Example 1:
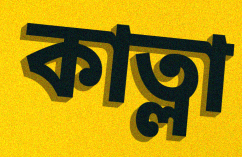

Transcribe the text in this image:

কাত্লা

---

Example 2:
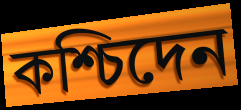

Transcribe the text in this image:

কশ্চিদেন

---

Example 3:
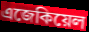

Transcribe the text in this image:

এজেকিয়েল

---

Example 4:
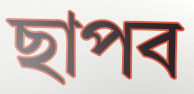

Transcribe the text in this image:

ছাপব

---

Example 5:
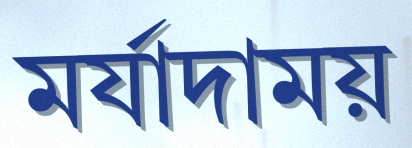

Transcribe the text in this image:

মর্যাদাময়